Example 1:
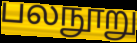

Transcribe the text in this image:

பலநூறு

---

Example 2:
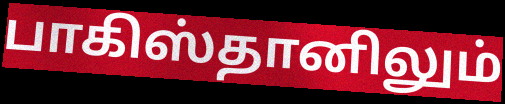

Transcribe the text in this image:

பாகிஸ்தானிலும்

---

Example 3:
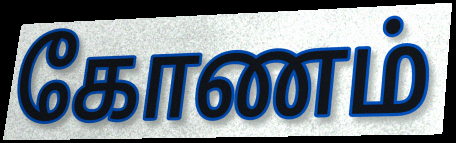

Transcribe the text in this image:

கோணம்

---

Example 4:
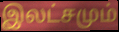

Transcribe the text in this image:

இலட்சமும்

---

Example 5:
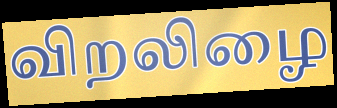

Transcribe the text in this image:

விறலிழை